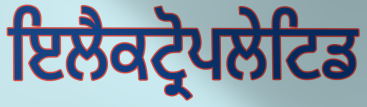
ਇਲੈਕਟ੍ਰੋਪਲੇਟਿਡ